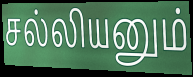
சல்லியனும்